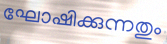
ഘോഷിക്കുന്നതും